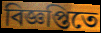
বিজ্ঞপ্তিতে